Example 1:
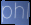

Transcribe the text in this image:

phl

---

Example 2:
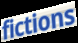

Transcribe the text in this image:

fictions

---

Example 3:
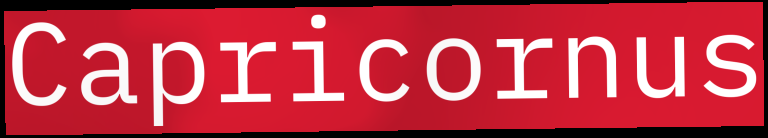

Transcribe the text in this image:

Capricornus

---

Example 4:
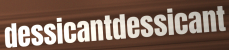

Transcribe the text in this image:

dessicantdessicant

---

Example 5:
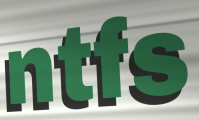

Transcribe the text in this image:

ntfs